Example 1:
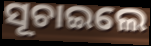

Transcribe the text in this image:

ସୂଚାଇଲେ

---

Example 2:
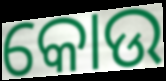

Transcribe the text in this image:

କୋଉ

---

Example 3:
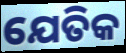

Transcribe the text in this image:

ଯେତିକ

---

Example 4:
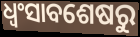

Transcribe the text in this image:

ଧ୍ୱଂସାବଶେଷରୁ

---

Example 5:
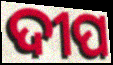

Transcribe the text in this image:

ଦୀପ